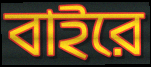
বাইরে